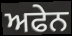
ਅਫੇਨ